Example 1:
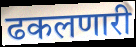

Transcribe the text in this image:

ढकलणारी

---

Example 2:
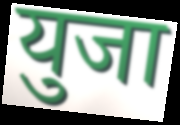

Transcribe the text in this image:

युजा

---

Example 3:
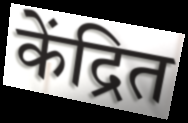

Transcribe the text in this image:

केंद्रित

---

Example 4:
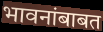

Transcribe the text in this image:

भावनांबाबत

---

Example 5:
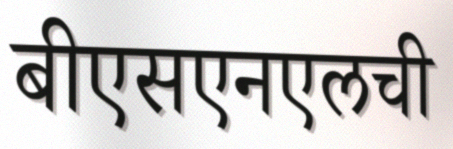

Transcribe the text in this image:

बीएसएनएलची